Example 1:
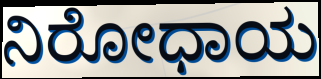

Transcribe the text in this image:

ನಿರೋಧಾಯ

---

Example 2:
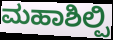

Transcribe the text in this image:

ಮಹಾಶಿಲ್ಪಿ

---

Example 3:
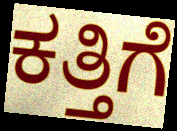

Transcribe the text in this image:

ಕತ್ತಿಗೆ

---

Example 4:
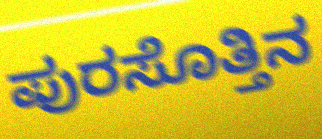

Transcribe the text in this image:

ಪುರಸೊತ್ತಿನ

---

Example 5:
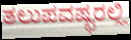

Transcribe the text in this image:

ತಲುಪವಷ್ಟರಲ್ಲಿ